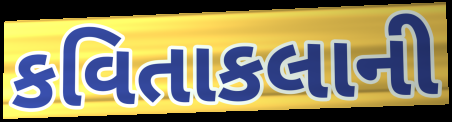
કવિતાકલાની